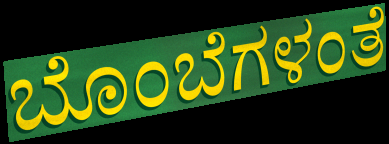
ಬೊಂಬೆಗಳಂತೆ